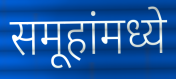
समूहांमध्ये